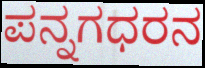
ಪನ್ನಗಧರನ